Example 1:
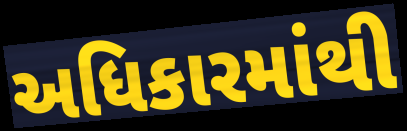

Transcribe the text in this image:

અધિકારમાંથી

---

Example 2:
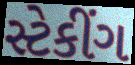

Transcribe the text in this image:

સ્ટેકીંગ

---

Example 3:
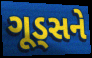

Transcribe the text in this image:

ગૂડ્સને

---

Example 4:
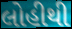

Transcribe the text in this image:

લોહીથી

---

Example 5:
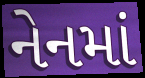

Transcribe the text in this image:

નેનમાં